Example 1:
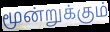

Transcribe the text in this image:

மூன்றுக்கும்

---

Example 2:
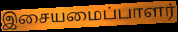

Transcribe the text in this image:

இசையமைப்பாளர்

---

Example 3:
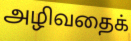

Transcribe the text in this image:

அழிவதைக்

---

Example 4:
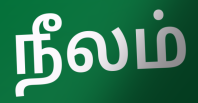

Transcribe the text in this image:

நீலம்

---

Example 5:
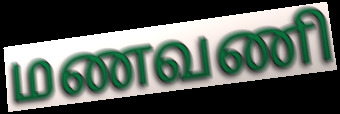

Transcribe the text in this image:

மணவணி